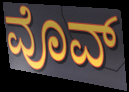
ವೊವ್